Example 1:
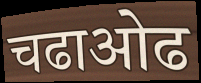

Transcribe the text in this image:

चढाओढ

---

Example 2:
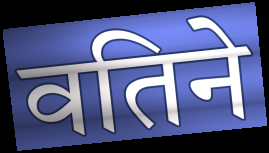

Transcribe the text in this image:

वतिने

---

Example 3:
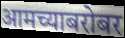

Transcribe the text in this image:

आमच्याबरोबर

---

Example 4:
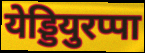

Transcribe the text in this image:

येड्डियुरप्पा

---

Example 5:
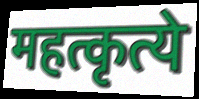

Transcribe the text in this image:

महत्कृत्ये